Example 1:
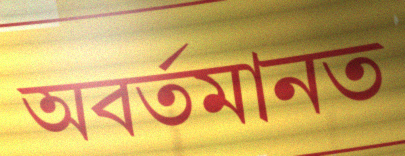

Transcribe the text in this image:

অবৰ্তমানত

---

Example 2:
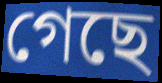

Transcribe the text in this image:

গেছে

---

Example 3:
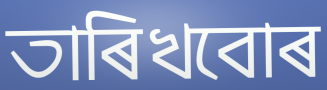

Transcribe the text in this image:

তাৰিখবোৰ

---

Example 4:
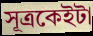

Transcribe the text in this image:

সূত্ৰকেইটা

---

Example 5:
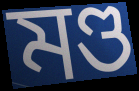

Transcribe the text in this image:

মণ্ড